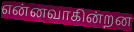
என்னவாகின்றன